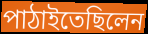
পাঠাইতেছিলেন